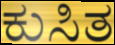
ಕುಸಿತ